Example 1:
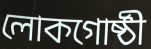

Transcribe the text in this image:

লোকগোষ্ঠী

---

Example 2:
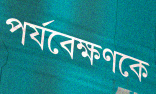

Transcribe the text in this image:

পর্যবেক্ষণকে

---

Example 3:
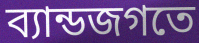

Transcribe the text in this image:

ব্যান্ডজগতে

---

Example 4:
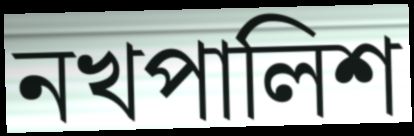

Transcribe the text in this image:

নখপালিশ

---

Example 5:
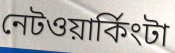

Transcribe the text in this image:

নেটওয়ার্কিংটা